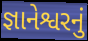
જ્ઞાનેશ્વરનું